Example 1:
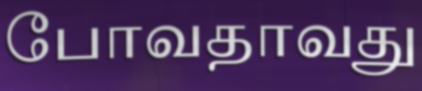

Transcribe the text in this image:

போவதாவது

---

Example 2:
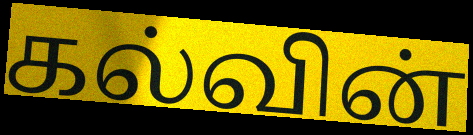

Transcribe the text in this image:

கல்வின்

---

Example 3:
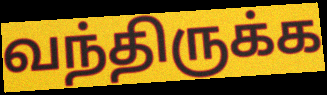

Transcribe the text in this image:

வந்திருக்க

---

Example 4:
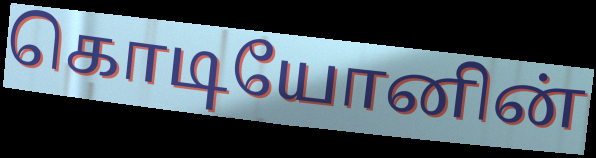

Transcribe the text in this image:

கொடியோனின்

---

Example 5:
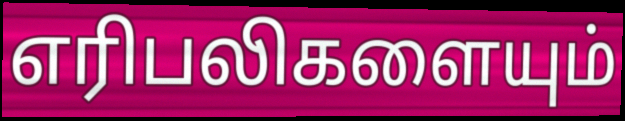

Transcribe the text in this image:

எரிபலிகளையும்